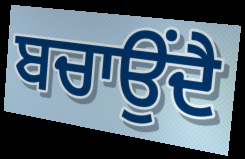
ਬਚਾਉਂਦੈ